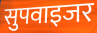
सुपवाइजर